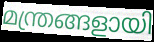
മന്ത്രങ്ങളായി